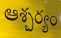
ఆశ్చర్యం